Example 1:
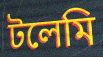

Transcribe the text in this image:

টলেমি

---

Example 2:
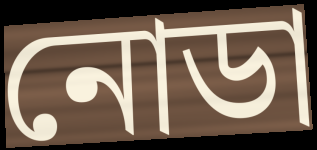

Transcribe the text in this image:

নোডা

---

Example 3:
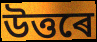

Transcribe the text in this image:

উত্তৰে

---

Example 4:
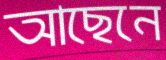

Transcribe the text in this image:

আছেনে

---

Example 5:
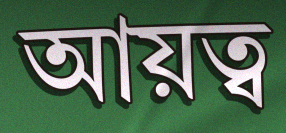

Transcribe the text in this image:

আয়ত্ব